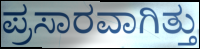
ಪ್ರಸಾರವಾಗಿತ್ತು